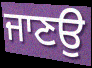
ਜਾਣਉ